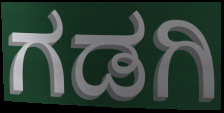
ಗಡಗಿ